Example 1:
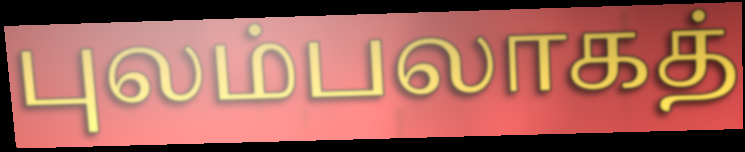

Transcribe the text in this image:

புலம்பலாகத்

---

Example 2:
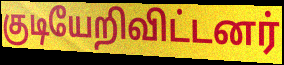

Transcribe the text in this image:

குடியேறிவிட்டனர்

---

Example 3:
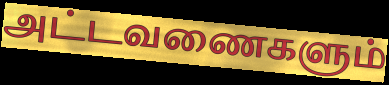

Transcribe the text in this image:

அட்டவணைகளும்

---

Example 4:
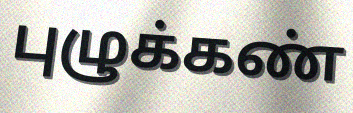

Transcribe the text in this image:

புழுக்கண்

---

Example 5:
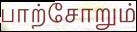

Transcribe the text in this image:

பாற்சோறும்